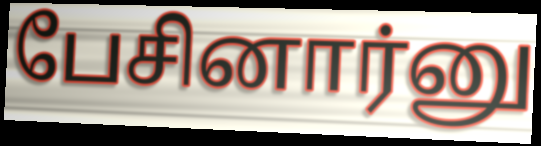
பேசினார்னு